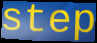
step